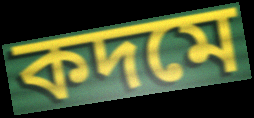
কদমে